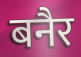
बनैर